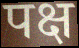
पक्ष